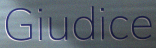
Giudice